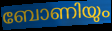
ബോണിയും